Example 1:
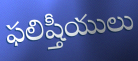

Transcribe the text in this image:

ఫలిష్తీయులు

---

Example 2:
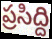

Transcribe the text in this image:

ప్రసిద్ది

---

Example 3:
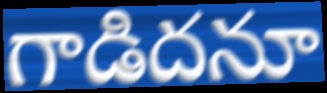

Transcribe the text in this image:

గాడిదనూ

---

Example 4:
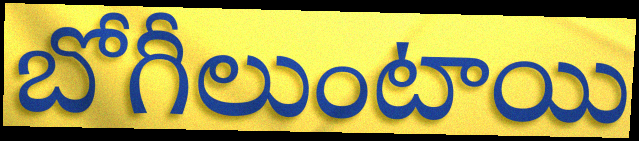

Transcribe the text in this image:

బోగీలుంటాయి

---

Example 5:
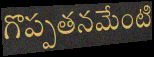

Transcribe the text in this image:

గొప్పతనమేంటి